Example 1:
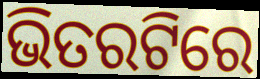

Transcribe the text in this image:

ଭିତରଟିରେ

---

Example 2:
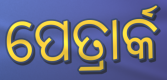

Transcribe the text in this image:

ପେତ୍ରାର୍କ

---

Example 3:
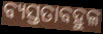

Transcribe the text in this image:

ବ୍ୟସ୍ତତାବହୁଳ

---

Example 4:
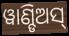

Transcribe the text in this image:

ୱାଣ୍ଡିଅସ୍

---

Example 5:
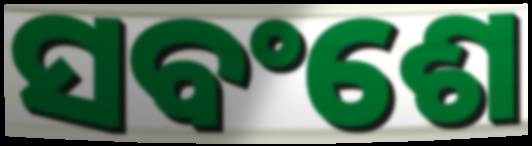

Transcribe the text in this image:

ସବଂଶେ